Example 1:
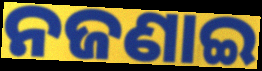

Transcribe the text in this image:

ନଜଣାଇ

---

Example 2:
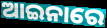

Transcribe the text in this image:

ଆଇନାରେ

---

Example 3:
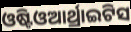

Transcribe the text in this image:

ଓଷ୍ଟିଓଆର୍ଥ୍ରାଇଟିସ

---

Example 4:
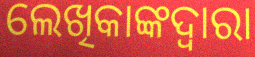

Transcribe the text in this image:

ଲେଖିକାଙ୍କଦ୍ୱାରା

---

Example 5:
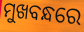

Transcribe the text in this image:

ମୁଖବନ୍ଧରେ